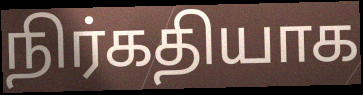
நிர்கதியாக